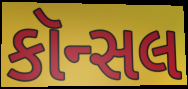
કૉન્સલ